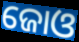
ଜୋଓ